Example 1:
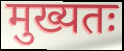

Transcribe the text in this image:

मुख्यतः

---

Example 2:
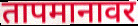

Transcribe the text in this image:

तापमानावर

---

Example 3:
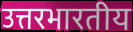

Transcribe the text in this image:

उत्तरभारतीय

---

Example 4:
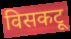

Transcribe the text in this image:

विसकटू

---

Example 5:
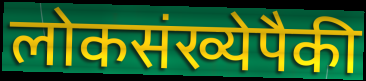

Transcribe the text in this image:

लोकसंख्येपैकी